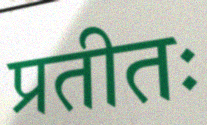
प्रतीतः